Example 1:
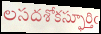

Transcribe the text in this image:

లసదశోకస్ఫూర్తిఁ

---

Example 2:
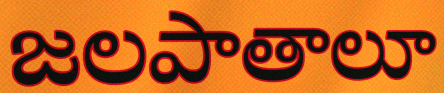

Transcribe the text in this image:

జలపాతాలూ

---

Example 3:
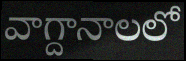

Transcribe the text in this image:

వాగ్దానాలలో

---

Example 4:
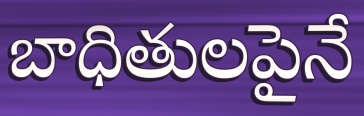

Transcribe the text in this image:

బాధితులపైనే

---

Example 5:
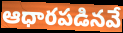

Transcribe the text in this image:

ఆధారపడినవే